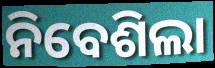
ନିବେଶିଲା